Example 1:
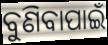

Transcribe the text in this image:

ବୁଣିବାପାଇଁ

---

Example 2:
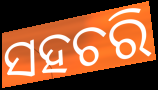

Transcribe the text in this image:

ସହଚରି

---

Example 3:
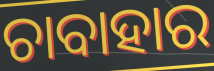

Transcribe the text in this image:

ଚାବାହାର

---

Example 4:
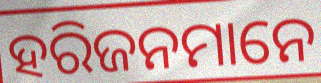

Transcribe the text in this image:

ହରିଜନମାନେ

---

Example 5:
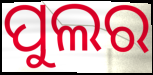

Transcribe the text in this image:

ପୁଲର